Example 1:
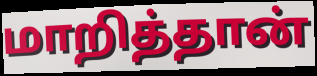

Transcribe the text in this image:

மாறித்தான்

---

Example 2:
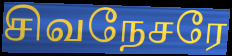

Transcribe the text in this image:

சிவநேசரே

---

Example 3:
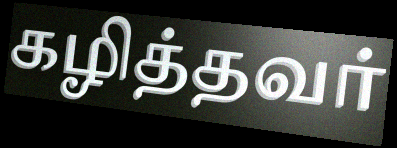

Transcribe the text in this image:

கழித்தவர்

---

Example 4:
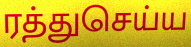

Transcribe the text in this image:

ரத்துசெய்ய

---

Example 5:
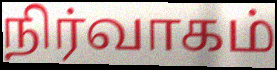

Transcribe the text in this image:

நிர்வாகம்